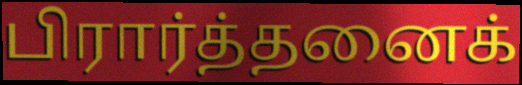
பிரார்த்தனைக்